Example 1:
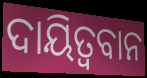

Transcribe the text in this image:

ଦାୟିତ୍ବବାନ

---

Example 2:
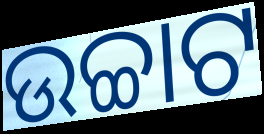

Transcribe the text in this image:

ଉଚ୍ଚାଟ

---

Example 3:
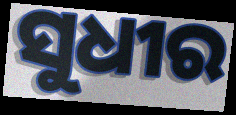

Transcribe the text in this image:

ସୁଧୀର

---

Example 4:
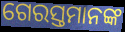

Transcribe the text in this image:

ଗେରସ୍ତମାନଙ୍କ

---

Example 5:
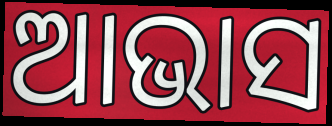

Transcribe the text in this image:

ଆଭାସ